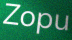
Zopu